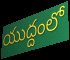
యుద్దంలో